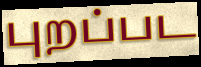
புறப்பட